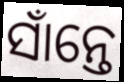
ସାଁନ୍ତେ